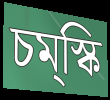
চম্‌স্কি